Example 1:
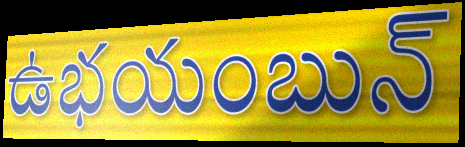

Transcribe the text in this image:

ఉభయంబున్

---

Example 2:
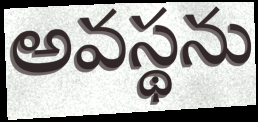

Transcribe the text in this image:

అవస్థను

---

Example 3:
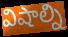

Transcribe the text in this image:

విషాల్ని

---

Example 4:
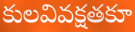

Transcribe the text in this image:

కులవివక్షతకూ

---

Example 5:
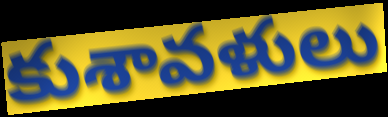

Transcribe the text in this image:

కుశావళులు